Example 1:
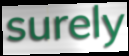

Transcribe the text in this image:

surely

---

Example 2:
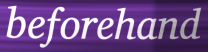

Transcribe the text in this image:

beforehand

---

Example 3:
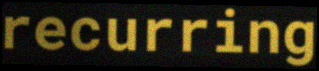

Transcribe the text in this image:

recurring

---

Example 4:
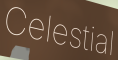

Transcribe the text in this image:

Celestial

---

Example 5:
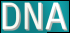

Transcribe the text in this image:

DNA